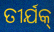
ତୀର୍ଯକ୍